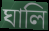
ঘালি